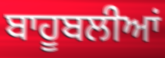
ਬਾਹੂਬਲੀਆਂ